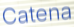
Catena